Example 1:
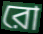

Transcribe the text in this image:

রো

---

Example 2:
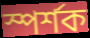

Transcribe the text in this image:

স্পর্শক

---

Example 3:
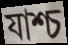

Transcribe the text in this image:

যাশ্চ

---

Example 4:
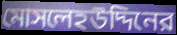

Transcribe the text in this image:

মোসলেহউদ্দিনের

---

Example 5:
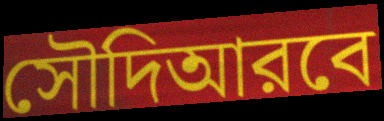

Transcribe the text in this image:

সৌদিআরবে